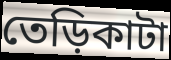
তেড়িকাটা